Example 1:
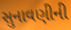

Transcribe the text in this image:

સુનાવણીની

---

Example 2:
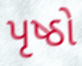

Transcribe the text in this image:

પૃષ્ઠો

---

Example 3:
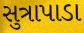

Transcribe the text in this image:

સુત્રાપાડા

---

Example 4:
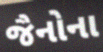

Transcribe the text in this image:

જૈનોના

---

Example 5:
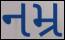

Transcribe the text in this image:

નમ્ર